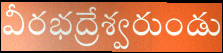
వీరభద్రేశ్వరుండు